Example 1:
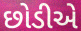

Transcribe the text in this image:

છોડીએ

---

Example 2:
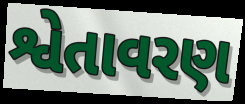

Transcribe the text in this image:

શ્વેતાવરણ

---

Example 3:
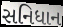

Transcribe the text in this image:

સનિધાન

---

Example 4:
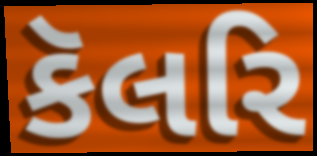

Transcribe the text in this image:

કૅલરિ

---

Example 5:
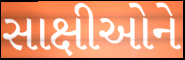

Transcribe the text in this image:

સાક્ષીઓને